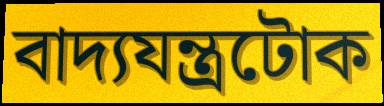
বাদ্যযন্ত্ৰটোক